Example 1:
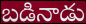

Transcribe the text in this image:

బడినాడు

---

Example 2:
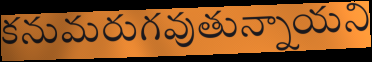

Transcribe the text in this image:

కనుమరుగవుతున్నాయని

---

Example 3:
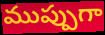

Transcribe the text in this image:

ముప్పుగా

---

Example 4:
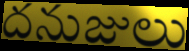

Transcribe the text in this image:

దనుజులు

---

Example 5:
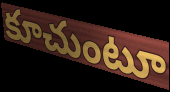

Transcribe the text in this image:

కూచుంటూ